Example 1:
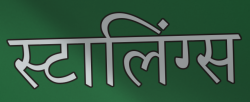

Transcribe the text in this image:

स्टालिंग्स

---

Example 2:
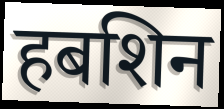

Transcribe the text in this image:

हबशिन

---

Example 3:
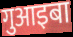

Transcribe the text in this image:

गुआइबा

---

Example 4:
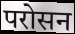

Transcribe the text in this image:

परोसन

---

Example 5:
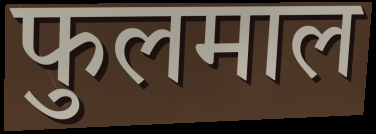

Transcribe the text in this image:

फुलमाल